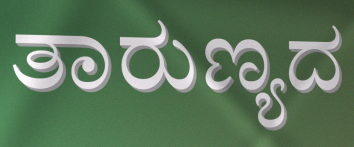
ತಾರುಣ್ಯದ